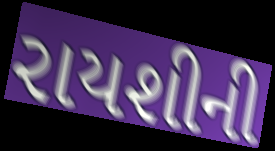
રાયશીની